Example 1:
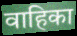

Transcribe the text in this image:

वाहिका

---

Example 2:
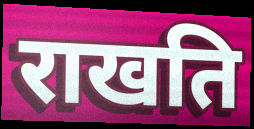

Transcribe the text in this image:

राखति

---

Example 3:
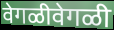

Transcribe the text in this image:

वेगळीवेगळी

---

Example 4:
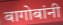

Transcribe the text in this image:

बागोबांनी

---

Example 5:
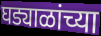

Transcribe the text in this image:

घड्याळांच्या